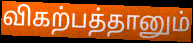
விகற்பத்தானும்